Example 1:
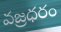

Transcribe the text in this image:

వజ్రధరం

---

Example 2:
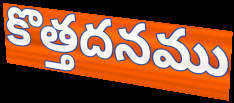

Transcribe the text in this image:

కొత్తదనము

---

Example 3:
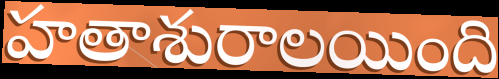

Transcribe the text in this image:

హతాశురాలయింది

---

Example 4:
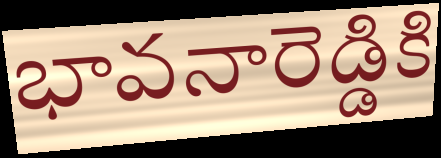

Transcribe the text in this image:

భావనారెడ్డికి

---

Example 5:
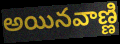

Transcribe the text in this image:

అయినవాణ్ణి